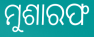
ମୁଶାରଫ